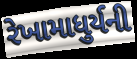
રેખામાધુર્યની